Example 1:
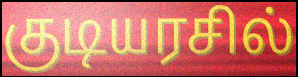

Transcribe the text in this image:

குடியரசில்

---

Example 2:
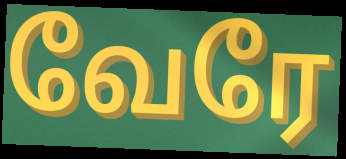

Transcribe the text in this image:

வேரே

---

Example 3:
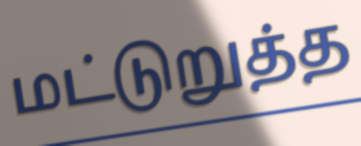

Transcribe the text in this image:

மட்டுறுத்த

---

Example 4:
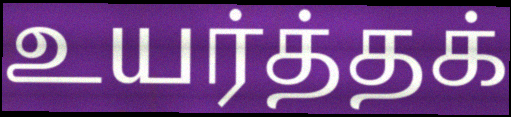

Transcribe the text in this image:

உயர்த்தக்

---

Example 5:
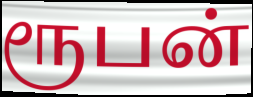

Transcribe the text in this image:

ரூபன்